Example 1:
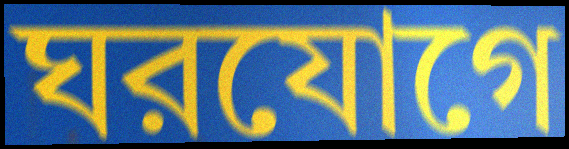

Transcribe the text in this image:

ঘরযোগে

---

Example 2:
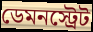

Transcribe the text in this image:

ডেমনস্ট্রেট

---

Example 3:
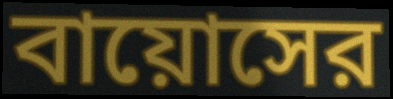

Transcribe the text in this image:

বায়োসের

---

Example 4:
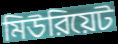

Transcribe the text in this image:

মিউরিয়েট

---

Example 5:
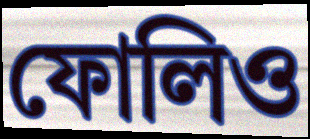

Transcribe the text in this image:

ফোলিও